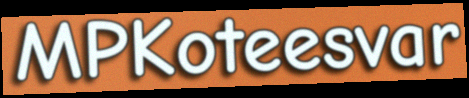
MPKoteesvar